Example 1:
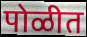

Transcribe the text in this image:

पोळीत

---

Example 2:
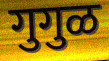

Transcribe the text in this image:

गुगुळ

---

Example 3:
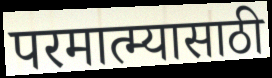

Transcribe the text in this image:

परमात्म्यासाठी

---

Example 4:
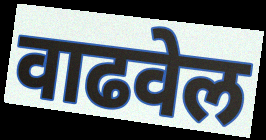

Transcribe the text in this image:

वाढवेल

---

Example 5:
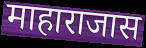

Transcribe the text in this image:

माहाराजास